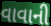
વાવાની